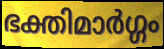
ഭക്തിമാർഗ്ഗം